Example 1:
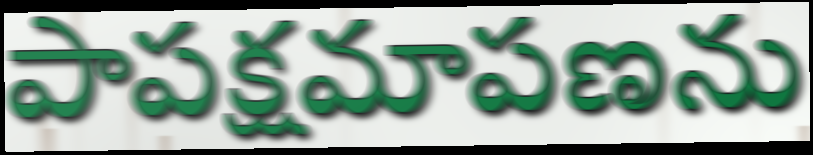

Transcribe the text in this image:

పాపక్షమాపణను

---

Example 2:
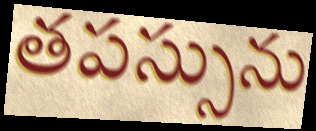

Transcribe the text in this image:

తపస్సును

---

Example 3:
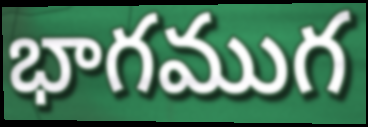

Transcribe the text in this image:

భాగముగ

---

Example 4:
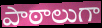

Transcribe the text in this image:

పాఠాలుగా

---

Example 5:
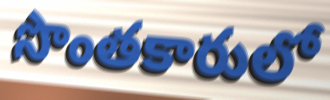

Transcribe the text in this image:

సొంతకారులో